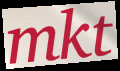
mkt